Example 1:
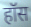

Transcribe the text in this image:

हॉस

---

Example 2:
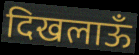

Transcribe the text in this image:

दिखलाऊँ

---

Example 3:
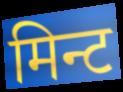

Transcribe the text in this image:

मिन्ट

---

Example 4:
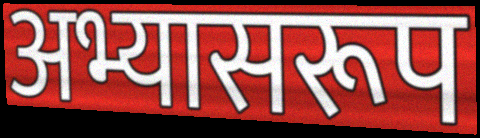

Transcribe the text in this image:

अभ्यासरूप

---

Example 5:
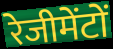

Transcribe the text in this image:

रेजीमेंटों